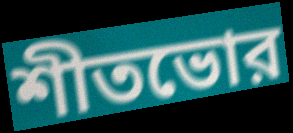
শীতভোর